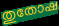
തുതോഷ